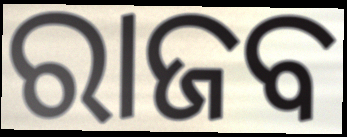
ରାଜବ